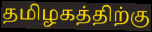
தமிழகத்திற்கு